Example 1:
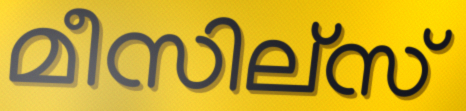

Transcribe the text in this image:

മീസില്സ്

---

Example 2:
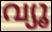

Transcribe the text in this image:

വ്യൂ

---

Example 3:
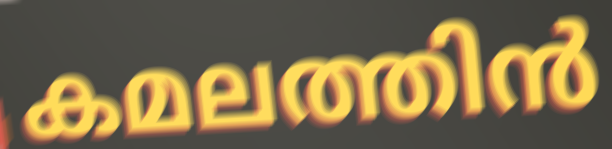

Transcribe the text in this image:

കമലത്തിൻ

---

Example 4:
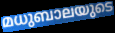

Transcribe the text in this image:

മധുബാലയുടെ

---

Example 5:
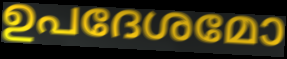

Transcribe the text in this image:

ഉപദേശമോ